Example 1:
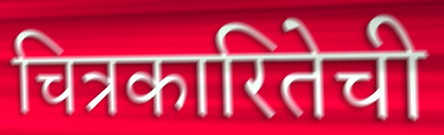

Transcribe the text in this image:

चित्रकारितेची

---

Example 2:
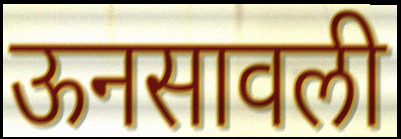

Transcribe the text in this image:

ऊनसावली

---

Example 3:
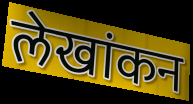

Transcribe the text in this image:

लेखांकन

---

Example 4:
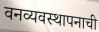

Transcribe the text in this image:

वनव्यवस्थापनाची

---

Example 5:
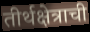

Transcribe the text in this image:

तीर्थक्षेत्राची